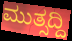
ಮುತ್ಸದ್ದಿ